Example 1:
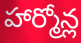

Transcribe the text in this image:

హార్మోన్ల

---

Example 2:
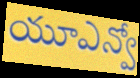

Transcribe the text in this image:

యూఎన్వో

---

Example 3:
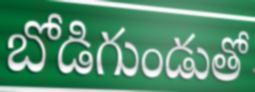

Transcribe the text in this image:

బోడిగుండుతో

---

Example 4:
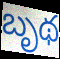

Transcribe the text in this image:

బృథ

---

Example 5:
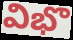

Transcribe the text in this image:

విభొ